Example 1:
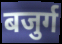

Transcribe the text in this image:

बजुर्ग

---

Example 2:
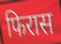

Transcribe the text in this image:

फिरास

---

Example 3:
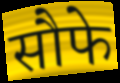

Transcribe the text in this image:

सौफे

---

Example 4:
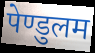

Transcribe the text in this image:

पेण्डुलम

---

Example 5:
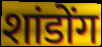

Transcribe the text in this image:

शांडोंग